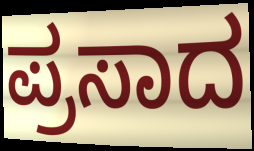
ಪ್ರಸಾದ